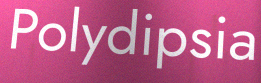
Polydipsia